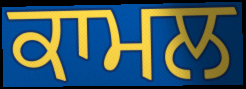
ਕਾਮਲ